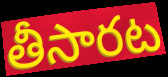
తీసారట